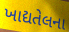
ખાદ્યતેલના